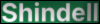
Shindell